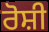
ਰੋਸ਼ੀ